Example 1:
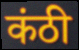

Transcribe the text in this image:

कंठी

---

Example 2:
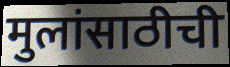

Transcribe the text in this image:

मुलांसाठीची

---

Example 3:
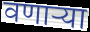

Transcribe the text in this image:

वणाऱ्या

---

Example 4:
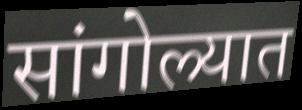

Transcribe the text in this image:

सांगोल्यात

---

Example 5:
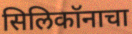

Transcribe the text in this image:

सिलिकॉनाचा